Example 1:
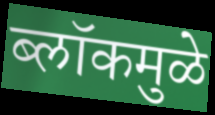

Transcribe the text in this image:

ब्लॉकमुळे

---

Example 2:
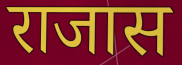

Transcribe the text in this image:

राजास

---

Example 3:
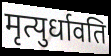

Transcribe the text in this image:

मृत्युर्धावति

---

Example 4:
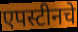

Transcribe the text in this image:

एपस्टीनचे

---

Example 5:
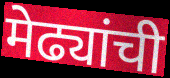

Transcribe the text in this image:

मेढ्यांची